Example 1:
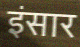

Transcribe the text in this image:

इंसार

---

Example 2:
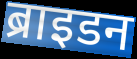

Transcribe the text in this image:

ब्राइडन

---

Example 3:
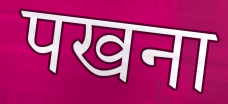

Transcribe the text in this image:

पखना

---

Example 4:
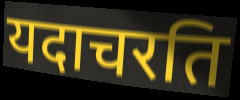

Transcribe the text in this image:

यदाचरति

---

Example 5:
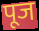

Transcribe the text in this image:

पूज